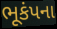
ભૂકંપના